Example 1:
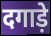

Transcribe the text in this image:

दगाड़े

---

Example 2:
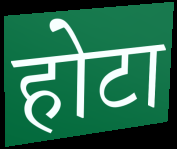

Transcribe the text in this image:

होटा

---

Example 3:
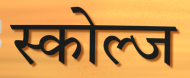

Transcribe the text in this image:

स्कोल्ज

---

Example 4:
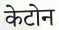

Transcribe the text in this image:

केटोन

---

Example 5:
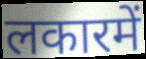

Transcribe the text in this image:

लकारमें